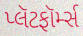
પ્લૅટફૉર્મ્સ